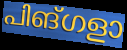
പിങ്ഗളാ